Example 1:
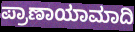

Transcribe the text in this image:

ಪ್ರಾಣಾಯಾಮಾದಿ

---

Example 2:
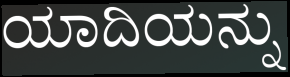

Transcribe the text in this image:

ಯಾದಿಯನ್ನು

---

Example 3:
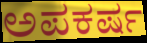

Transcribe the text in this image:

ಅಪಕರ್ಷ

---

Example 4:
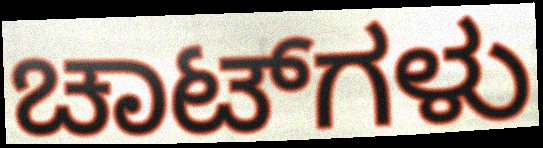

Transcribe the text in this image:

ಚಾಟ್‌ಗಳು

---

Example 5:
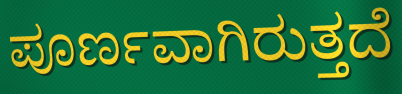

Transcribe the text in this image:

ಪೂರ್ಣವಾಗಿರುತ್ತದೆ